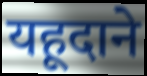
यहूदाने